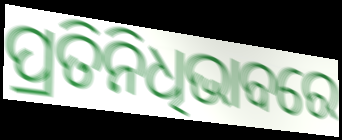
ପ୍ରତିନିଧିଭାବରେ